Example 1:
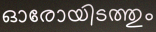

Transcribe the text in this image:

ഓരോയിടത്തും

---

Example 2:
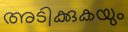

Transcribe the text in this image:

അടിക്കുകയും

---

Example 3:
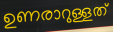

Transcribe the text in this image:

ഉണരാറുള്ളത്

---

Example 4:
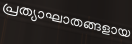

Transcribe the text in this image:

പ്രത്യാഘാതങ്ങളായ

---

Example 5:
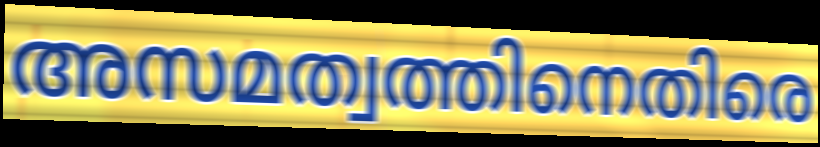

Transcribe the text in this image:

അസമത്വത്തിനെതിരെ